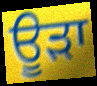
ਊੜਾ